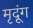
मृदूंग